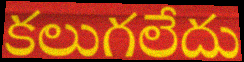
కలుగలేదు